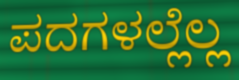
ಪದಗಳಲ್ಲೆಲ್ಲ